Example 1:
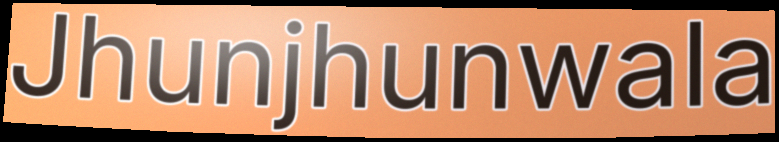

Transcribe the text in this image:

Jhunjhunwala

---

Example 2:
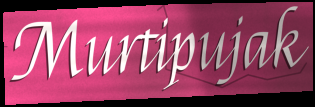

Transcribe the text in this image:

Murtipujak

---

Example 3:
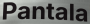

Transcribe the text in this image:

Pantala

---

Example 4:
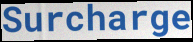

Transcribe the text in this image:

Surcharge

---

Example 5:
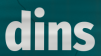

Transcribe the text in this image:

dins